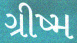
ગ્રીષ્મ